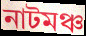
নাটমঞ্চ